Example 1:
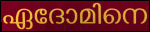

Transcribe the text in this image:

ഏദോമിനെ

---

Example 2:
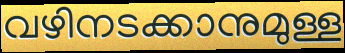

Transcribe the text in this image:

വഴിനടക്കാനുമുള്ള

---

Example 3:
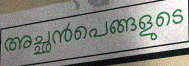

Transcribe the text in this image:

അച്ഛൻപെങ്ങളുടെ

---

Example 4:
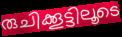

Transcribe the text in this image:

രുചിക്കൂട്ടിലൂടെ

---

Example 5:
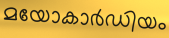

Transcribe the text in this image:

മയോകാർഡിയം